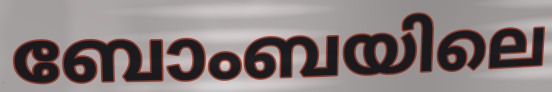
ബോംബയിലെ